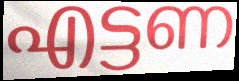
എട്ടണ